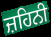
ਜ਼ਹਿਨੀ